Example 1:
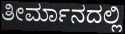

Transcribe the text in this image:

ತೀರ್ಮಾನದಲ್ಲಿ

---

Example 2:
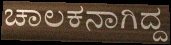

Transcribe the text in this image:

ಚಾಲಕನಾಗಿದ್ದ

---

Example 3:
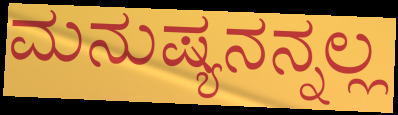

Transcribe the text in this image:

ಮನುಷ್ಯನನ್ನಲ್ಲ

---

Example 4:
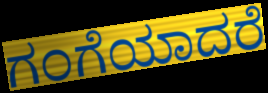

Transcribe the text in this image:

ಗಂಗೆಯಾದರೆ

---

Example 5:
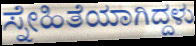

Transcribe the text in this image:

ಸ್ನೇಹಿತೆಯಾಗಿದ್ದಳು